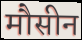
मौसीन